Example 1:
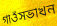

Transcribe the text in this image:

গাওঁসভাখন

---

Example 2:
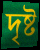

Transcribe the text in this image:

দৃষ্ট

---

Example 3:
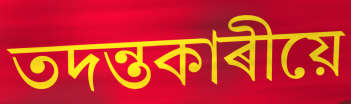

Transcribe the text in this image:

তদন্তকাৰীয়ে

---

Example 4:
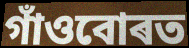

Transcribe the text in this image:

গাঁওবোৰত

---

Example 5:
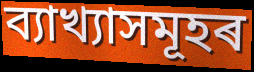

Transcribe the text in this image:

ব্যাখ্যাসমূহৰ